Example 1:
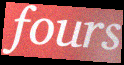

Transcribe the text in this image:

fours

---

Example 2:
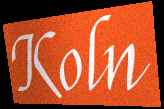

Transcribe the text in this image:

Koln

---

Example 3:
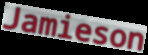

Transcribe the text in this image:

Jamieson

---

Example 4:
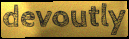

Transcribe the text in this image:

devoutly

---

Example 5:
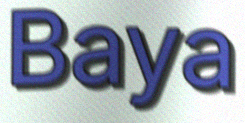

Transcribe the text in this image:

Baya